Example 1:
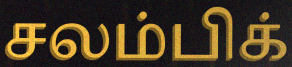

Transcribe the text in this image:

சலம்பிக்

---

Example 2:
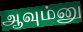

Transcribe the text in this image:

ஆவும்னு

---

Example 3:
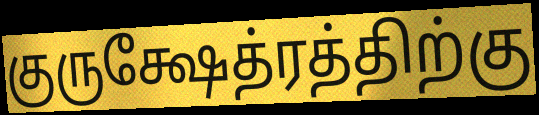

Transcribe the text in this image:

குருக்ஷேத்ரத்திற்கு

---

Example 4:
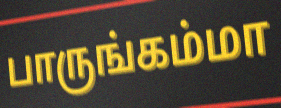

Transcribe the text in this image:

பாருங்கம்மா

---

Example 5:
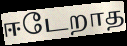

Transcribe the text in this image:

ஈடேறாத